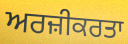
ਅਰਜ਼ੀਕਰਤਾ